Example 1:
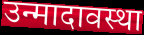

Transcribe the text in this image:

उन्मादावस्था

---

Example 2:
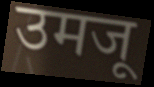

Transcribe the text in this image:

उमजू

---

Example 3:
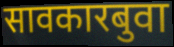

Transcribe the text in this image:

सावकारबुवा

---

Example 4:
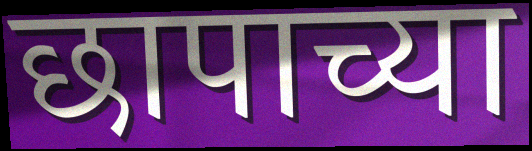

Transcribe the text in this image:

छापाच्या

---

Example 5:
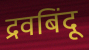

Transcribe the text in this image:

द्रवबिंदू